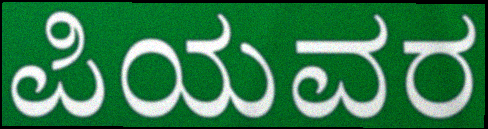
ಪಿಯವರ